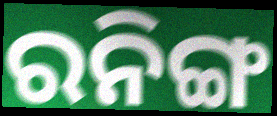
ରନିଙ୍ଗ